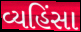
વ્યહિંસા